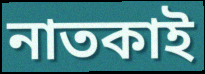
নাতকাই